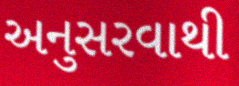
અનુસરવાથી